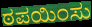
ಠಪಯಿಂಸು